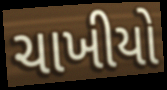
ચાખીયો